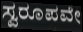
ಸ್ವರೂಪವೇ